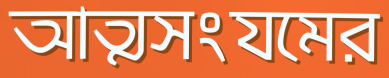
আত্মসংযমের